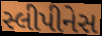
સ્લીપીનેસ